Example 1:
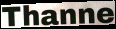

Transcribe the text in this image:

Thanne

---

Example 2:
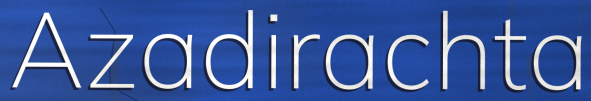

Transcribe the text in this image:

Azadirachta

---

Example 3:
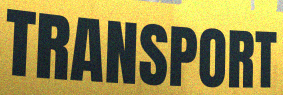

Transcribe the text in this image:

TRANSPORT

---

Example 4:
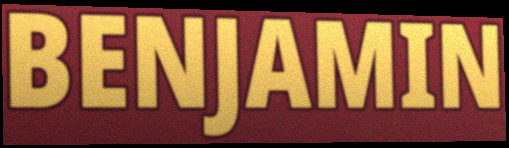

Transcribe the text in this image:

BENJAMIN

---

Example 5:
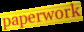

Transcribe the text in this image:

paperwork